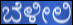
ಬೆಳೀಲಿ